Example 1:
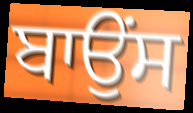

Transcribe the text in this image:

ਬਾਉਂਸ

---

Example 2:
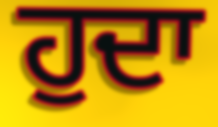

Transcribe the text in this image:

ਹੁਦਾ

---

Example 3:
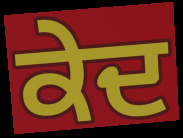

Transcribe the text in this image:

ਕੇਦ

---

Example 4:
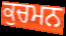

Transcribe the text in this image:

ਕੁਚਮਨ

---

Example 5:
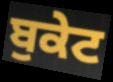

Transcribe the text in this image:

ਬੁਕੇਟ